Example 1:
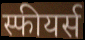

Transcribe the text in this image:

स्फीयर्स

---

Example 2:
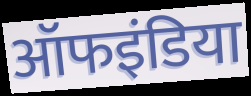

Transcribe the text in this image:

ऑफइंडिया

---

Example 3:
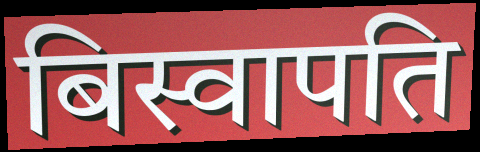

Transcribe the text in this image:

बिस्वापति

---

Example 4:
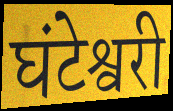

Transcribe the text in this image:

घंटेश्वरी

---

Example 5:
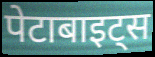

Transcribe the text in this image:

पेटाबाइट्स